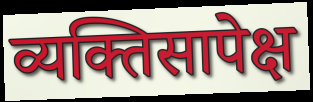
व्यक्तिसापेक्ष